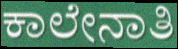
ಕಾಲೇನಾತಿ